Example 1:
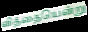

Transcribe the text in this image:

வித்தையென்று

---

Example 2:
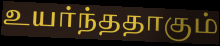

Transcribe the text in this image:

உயர்ந்ததாகும்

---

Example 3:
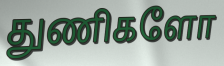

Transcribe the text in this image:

துணிகளோ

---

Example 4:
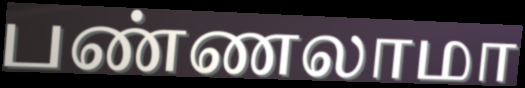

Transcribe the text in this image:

பண்ணலாமா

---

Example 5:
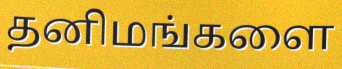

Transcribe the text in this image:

தனிமங்களை